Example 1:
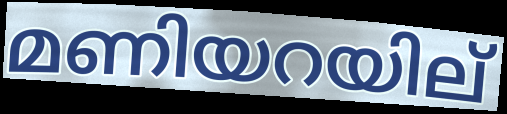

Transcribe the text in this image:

മണിയറയില്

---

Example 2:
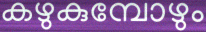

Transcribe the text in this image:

കഴുകുമ്പോഴും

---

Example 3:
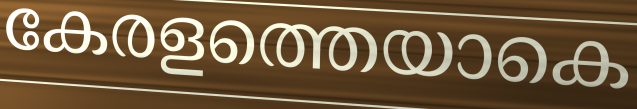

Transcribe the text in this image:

കേരളത്തെയാകെ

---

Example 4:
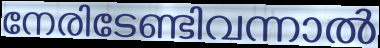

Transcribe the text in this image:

നേരിടേണ്ടിവന്നാൽ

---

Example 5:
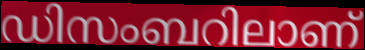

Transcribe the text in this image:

ഡിസംബറിലാണ്